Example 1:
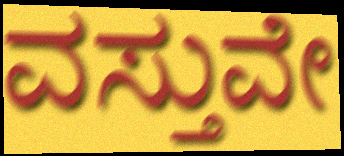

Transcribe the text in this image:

ವಸ್ತುವೇ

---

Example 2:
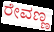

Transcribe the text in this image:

ರೇವಣ್ಣ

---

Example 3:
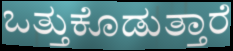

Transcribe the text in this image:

ಒತ್ತುಕೊಡುತ್ತಾರೆ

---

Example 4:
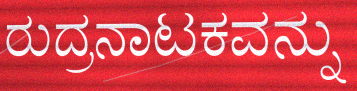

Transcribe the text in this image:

ರುದ್ರನಾಟಕವನ್ನು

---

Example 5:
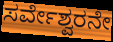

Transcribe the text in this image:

ಸರ್ವೇಶ್ವರನೇ